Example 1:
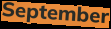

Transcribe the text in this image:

September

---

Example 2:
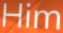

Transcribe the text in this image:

Him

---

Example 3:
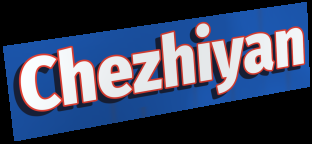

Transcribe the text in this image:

Chezhiyan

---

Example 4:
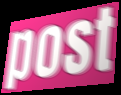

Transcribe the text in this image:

post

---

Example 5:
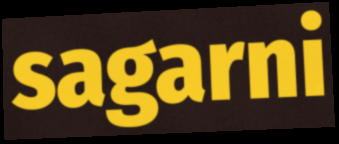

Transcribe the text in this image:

sagarni